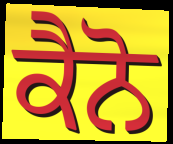
ਕੈਨੋ